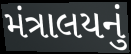
મંત્રાલયનું